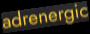
adrenergic